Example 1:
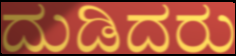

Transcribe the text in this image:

ದುಡಿದರು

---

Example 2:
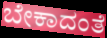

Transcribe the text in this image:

ಬೇಕಾದಂತೆ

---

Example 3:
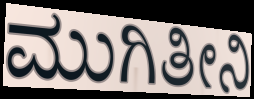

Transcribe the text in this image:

ಮುಗಿತೀನಿ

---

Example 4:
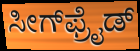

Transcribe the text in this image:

ಸೀಗ್‌ಫ್ರೈಡ್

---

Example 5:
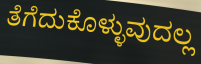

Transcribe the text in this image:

ತೆಗೆದುಕೊಳ್ಳುವುದಲ್ಲ